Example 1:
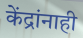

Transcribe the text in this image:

केंद्रांनाही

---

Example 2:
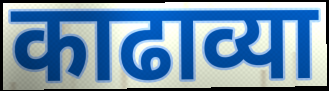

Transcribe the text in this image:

काढाव्या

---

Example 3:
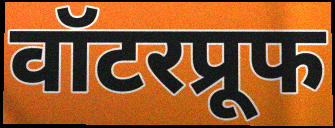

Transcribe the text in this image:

वॉटरप्रूफ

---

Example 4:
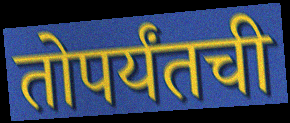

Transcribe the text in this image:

तोपर्यंतची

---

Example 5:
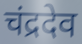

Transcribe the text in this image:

चंद्रदेव